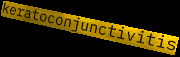
keratoconjunctivitis